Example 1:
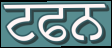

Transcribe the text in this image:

ਟਫਨ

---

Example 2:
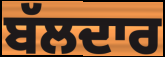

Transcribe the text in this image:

ਬੱਲਦਾਰ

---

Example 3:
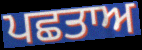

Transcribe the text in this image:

ਪਛਤਾਅ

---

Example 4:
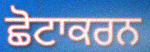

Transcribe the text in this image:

ਛੋਟਾਕਰਨ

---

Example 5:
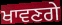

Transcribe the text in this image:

ਖਾਵਣਗੇ